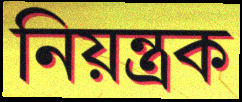
নিয়ন্ত্রক